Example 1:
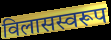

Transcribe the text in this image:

विलासस्वरूप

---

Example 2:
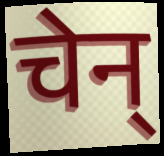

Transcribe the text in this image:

चेन्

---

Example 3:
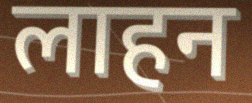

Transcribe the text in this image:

लाहन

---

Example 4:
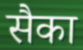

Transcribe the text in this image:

सैका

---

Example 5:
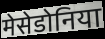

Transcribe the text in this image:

मेसेडोनिया